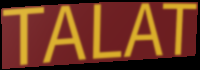
TALAT